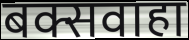
बक्सवाहा